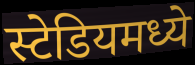
स्टेडियमध्ये